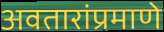
अवतारांप्रमाणे